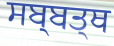
ਸਬ੍ਬਤ੍ਥ